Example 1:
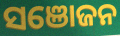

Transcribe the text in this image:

ସଞୋଜନ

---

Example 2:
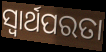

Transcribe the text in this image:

ସ୍ବାର୍ଥପରତା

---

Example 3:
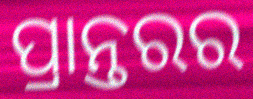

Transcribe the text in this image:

ପ୍ରାନ୍ତରର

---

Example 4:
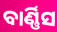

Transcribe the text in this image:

ବାର୍ଣ୍ଣିସ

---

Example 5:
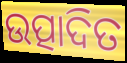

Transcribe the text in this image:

ଉତ୍ପାଦିତ